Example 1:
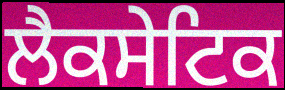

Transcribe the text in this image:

ਲੈਕਸੇਟਿਕ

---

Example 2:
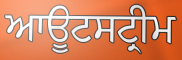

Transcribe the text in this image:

ਆਊਟਸਟ੍ਰੀਮ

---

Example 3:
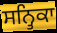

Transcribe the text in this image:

ਸਨ੍ਤਿਕਾ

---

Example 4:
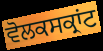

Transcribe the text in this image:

ਵੋਲਕਸਕ੍ਰਾਂਟ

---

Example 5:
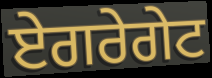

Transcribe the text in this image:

ਏਗਰੇਗੇਟ